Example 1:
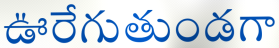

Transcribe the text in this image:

ఊరేగుతుండగా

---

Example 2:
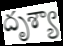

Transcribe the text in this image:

దృశ్యా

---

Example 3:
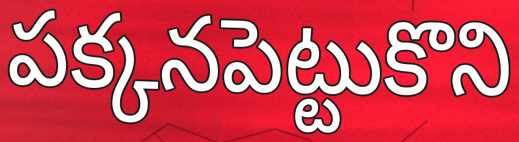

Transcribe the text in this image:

పక్కనపెట్టుకొని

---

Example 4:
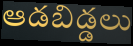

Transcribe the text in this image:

ఆడబిడ్డలు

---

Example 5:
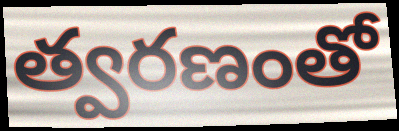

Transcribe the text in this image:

త్వరణంతో